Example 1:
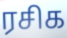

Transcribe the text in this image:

ரசிக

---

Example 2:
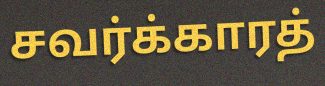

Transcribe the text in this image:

சவர்க்காரத்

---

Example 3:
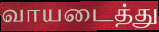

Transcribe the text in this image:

வாயடைத்து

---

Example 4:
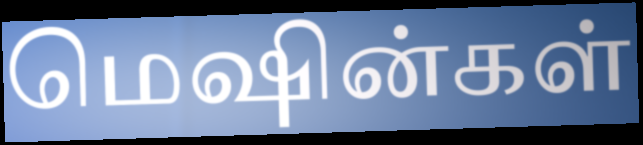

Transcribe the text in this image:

மெஷின்கள்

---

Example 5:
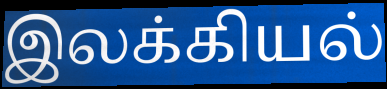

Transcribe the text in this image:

இலக்கியல்